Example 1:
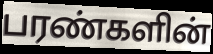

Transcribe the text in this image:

பரண்களின்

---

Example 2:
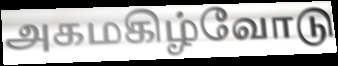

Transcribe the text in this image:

அகமகிழ்வோடு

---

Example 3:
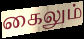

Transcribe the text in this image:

கைலும்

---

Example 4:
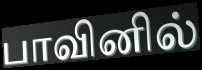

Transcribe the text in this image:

பாவினில்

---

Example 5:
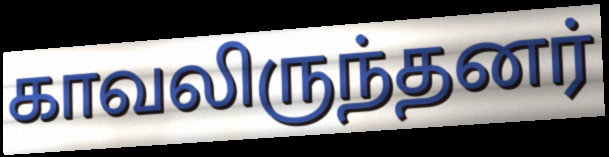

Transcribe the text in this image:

காவலிருந்தனர்